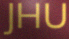
JHU